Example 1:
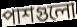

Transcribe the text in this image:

পাশগুলো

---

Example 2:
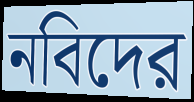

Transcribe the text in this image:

নবিদের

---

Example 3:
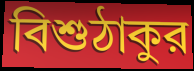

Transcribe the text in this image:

বিশুঠাকুর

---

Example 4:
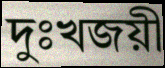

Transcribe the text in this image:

দুঃখজয়ী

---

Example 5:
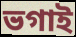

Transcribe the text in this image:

ভগাই